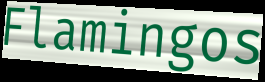
Flamingos